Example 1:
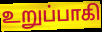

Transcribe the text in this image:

உறுப்பாகி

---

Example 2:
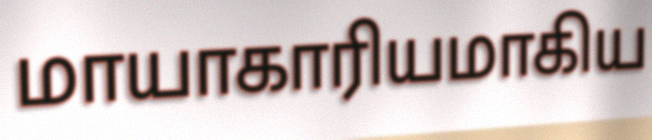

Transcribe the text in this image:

மாயாகாரியமாகிய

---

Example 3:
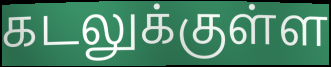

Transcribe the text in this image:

கடலுக்குள்ள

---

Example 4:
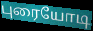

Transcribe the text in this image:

புரையோடி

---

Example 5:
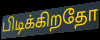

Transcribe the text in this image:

பிடிக்கிறதோ